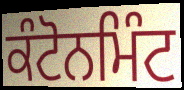
ਕੰਟੋਨਮਿੰਟ